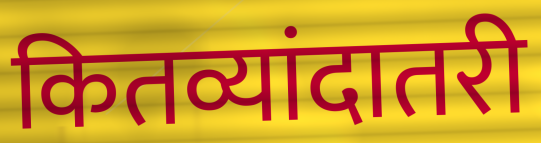
कितव्यांदातरी